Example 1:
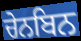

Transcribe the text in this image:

ਚੇਨਬਿਨ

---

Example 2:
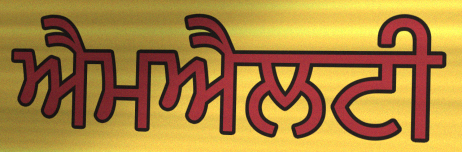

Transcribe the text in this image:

ਐਮਐਲਟੀ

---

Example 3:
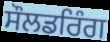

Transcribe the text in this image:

ਸੌਲਡਰਿੰਗ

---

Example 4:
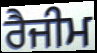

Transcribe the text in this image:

ਰੈਜੀਮ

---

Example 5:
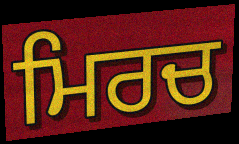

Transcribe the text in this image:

ਮਿਰਚ